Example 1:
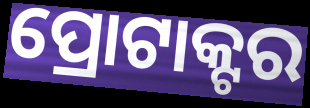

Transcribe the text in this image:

ପ୍ରୋଟାକ୍ଟର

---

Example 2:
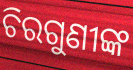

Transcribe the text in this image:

ଚିରଗୁଣୀଙ୍କ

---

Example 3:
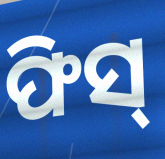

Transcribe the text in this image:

ଫିସ୍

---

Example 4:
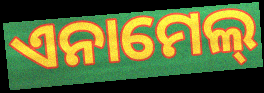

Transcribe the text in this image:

ଏନାମେଲ୍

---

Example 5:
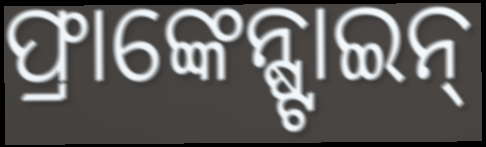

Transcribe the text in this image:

ଫ୍ରାଙ୍କେନ୍ଷ୍ଟାଇନ୍